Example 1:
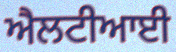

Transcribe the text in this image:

ਐਲਟੀਆਈ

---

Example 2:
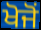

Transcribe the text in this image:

ਖੋਜੋਂ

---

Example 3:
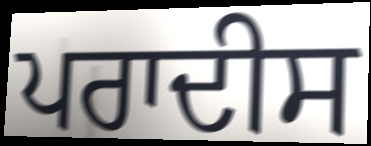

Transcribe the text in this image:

ਪਰਾਦੀਸ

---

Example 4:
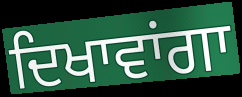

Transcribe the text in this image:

ਦਿਖਾਵਾਂਗਾ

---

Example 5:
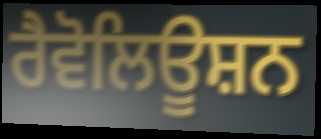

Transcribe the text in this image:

ਰੈਵੋਲਿਊਸ਼ਨ